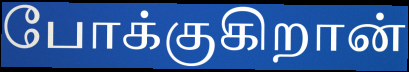
போக்குகிறான்